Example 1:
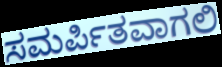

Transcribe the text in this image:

ಸಮರ್ಪಿತವಾಗಲಿ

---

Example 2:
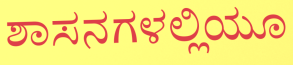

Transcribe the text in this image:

ಶಾಸನಗಳಲ್ಲಿಯೂ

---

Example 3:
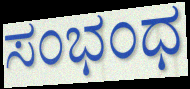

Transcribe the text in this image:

ಸಂಭಂಧ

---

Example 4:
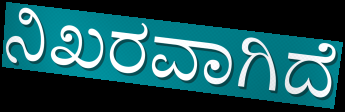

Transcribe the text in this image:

ನಿಖರವಾಗಿದೆ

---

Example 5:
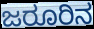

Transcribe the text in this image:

ಜರೂರಿನ